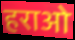
हराओ